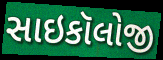
સાઇકૉલોજી